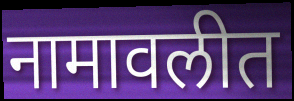
नामावलीत